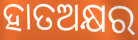
ହାତଅକ୍ଷର